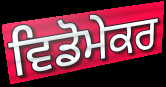
ਵਿਡੋਮੇਕਰ